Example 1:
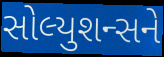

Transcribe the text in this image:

સોલ્યુશન્સને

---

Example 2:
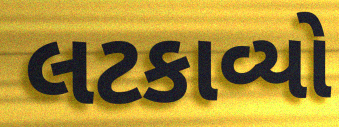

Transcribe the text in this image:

લટકાવ્યો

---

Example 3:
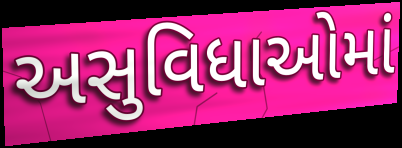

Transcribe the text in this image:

અસુવિધાઓમાં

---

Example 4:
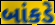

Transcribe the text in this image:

બાંકડે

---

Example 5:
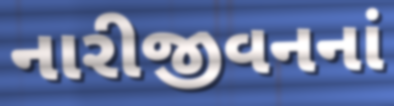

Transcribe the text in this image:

નારીજીવનનાં